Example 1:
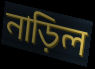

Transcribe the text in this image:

নাড়িল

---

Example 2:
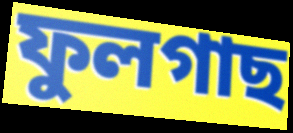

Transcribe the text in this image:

ফুলগাছ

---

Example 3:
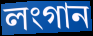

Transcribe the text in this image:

লংগান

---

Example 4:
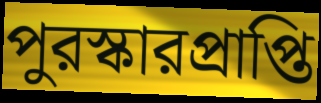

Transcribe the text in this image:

পুরস্কারপ্রাপ্তি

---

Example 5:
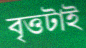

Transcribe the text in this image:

বৃত্তটাই